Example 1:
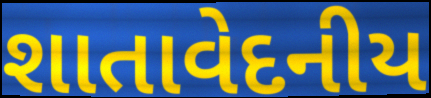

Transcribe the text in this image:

શાતાવેદનીય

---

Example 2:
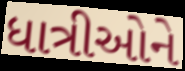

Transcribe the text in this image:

ધાત્રીઓને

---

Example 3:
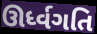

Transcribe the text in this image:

ઊર્ધ્વગતિ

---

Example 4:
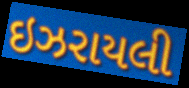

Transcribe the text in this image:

ઇઝરાયલી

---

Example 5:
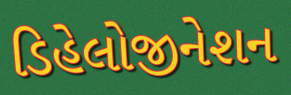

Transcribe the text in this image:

ડિહેલોજીનેશન